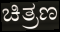
ಚಿತ್ರಣ